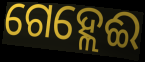
ଗେହ୍ଲେଈ